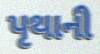
પૃથાની